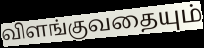
விளங்குவதையும்